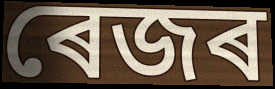
ৰেজৰ